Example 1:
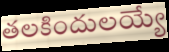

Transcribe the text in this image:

తలకిందులయ్యే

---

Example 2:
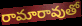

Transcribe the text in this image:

రామారావుతో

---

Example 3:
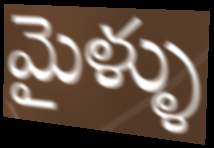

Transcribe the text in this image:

మైళ్ళు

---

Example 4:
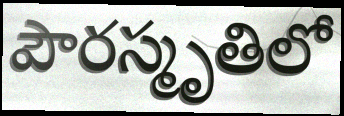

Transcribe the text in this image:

పౌరస్మృతిలో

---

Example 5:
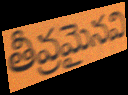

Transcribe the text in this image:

తీవ్రమైనవి